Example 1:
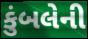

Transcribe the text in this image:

કુંબલેની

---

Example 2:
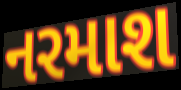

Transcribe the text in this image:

નરમાશ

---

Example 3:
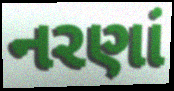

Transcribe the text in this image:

નરણાં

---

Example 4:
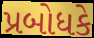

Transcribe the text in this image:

પ્રબોધકે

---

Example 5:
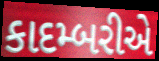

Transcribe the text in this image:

કાદમ્બરીએ